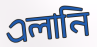
এলানি